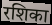
रशिका